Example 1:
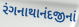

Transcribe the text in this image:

રંગનાથાનંદજીનાં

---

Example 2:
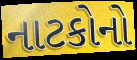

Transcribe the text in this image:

નાટકોનો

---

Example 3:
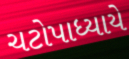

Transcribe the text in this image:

ચટોપાધ્યાયે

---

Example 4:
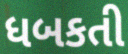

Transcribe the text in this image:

ધબકતી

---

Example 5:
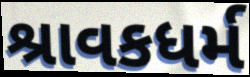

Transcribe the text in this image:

શ્રાવકધર્મ